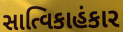
સાત્વિકાહંકાર